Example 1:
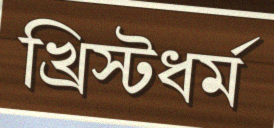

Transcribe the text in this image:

খ্রিস্টধর্ম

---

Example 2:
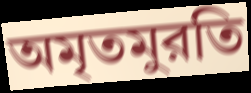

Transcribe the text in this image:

অমৃতমুরতি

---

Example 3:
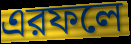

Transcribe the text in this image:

এরফলে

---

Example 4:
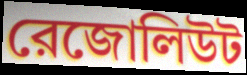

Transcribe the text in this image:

রেজোলিউট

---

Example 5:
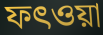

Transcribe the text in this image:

ফৎওয়া